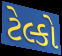
ટેલ્કો